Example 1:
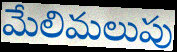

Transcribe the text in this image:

మేలిమలుపు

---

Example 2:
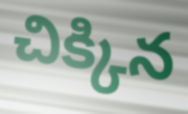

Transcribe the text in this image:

చిక్కిన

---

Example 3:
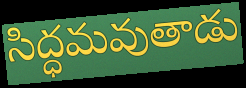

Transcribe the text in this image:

సిద్ధమవుతాడు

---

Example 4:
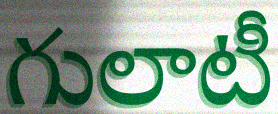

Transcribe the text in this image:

గులాటీ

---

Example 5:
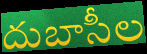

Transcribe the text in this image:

దుబాసీల